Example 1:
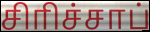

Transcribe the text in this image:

சிரிச்சாப்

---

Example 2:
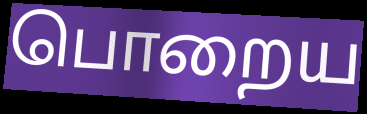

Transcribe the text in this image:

பொறைய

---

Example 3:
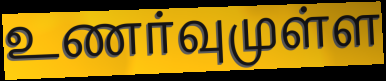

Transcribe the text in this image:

உணர்வுமுள்ள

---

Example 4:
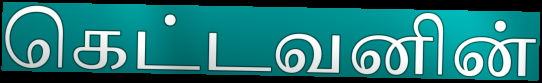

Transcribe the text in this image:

கெட்டவனின்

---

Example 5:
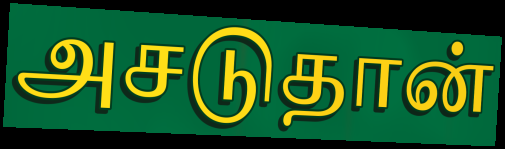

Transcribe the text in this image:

அசடுதான்